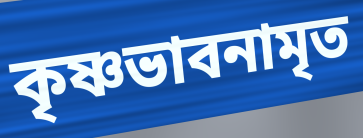
কৃষ্ণভাবনামৃত